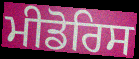
ਮੀਡੋਰਿਸ